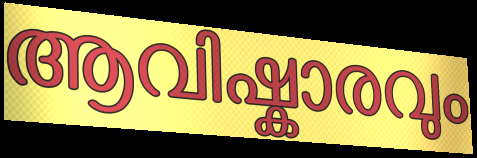
ആവിഷ്കാരവും